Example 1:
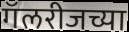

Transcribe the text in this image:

गॅलरीजच्या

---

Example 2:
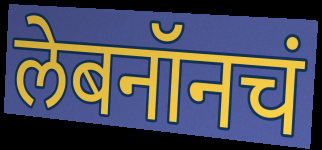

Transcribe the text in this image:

लेबनॉनचं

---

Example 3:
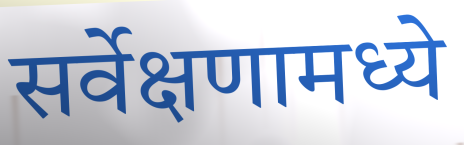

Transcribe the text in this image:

सर्वेक्षणामध्ये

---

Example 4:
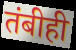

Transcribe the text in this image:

तंबीही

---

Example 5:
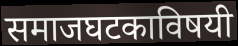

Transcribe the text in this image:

समाजघटकाविषयी